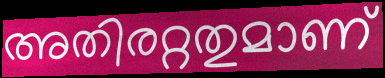
അതിരറ്റതുമാണ്